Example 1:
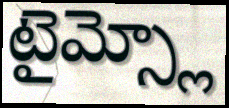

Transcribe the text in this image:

టైమ్స్లో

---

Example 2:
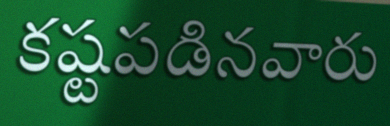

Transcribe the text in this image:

కష్టపడినవారు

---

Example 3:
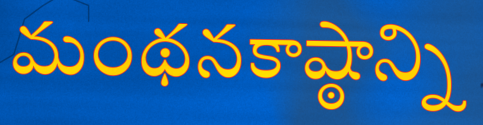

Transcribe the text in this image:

మంథనకాష్ఠాన్ని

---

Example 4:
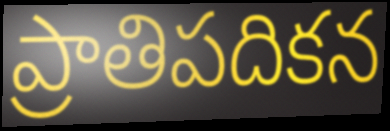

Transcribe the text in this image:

ప్రాతిపదికన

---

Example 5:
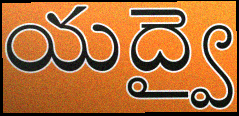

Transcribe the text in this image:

యద్వై